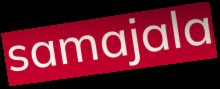
samajala